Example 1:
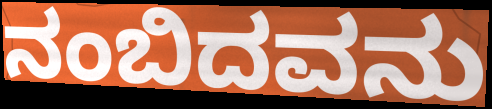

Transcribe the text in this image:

ನಂಬಿದವನು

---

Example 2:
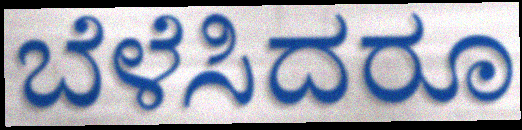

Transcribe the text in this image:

ಬೆಳೆಸಿದರೂ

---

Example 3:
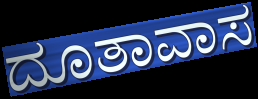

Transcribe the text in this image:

ದೂತಾವಾಸ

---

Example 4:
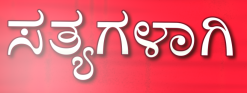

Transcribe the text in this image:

ಸತ್ಯಗಳಾಗಿ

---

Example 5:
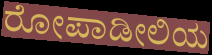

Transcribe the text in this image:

ರೋಪಾಡೀಲಿಯ